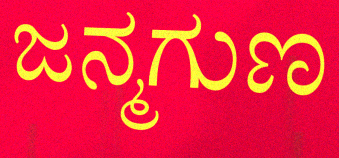
ಜನ್ಮಗುಣ